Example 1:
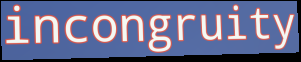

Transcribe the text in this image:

incongruity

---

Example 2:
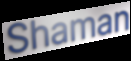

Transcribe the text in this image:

Shaman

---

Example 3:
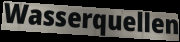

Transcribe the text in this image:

Wasserquellen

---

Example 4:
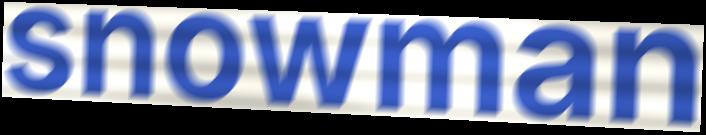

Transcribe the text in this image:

snowman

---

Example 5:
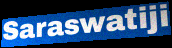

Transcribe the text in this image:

Saraswatiji